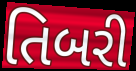
તિબરી